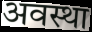
अवस्था